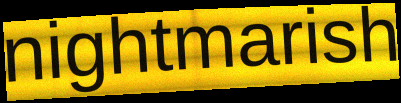
nightmarish